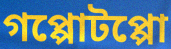
গপ্পোটপ্পো